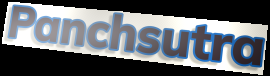
Panchsutra